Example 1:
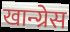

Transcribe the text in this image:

खान्ग्रेस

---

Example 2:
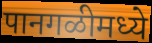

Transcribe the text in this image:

पानगळीमध्ये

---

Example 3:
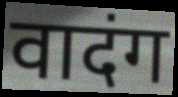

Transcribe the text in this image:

वादंग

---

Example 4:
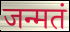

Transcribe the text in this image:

जन्मतं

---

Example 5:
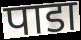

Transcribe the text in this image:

पाडा